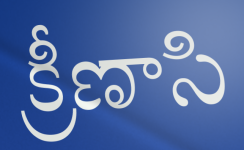
క్రీణాసి